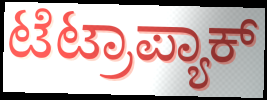
ಟೆಟ್ರಾಪ್ಯಾಕ್